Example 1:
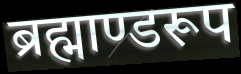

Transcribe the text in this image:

ब्रह्माण्डरूप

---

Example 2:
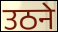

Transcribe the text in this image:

उठने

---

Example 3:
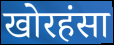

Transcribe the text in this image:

खोरहंसा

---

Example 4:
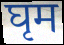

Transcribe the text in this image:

घृम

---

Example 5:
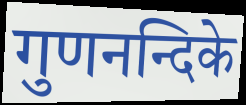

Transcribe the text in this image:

गुणनन्दिके